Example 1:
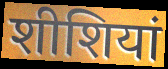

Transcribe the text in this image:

शीशियां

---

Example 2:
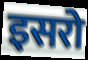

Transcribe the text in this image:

इसरो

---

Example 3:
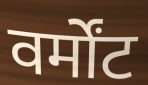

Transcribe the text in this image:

वर्मोंट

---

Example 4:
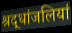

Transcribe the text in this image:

श्रद्धांजलियां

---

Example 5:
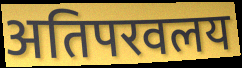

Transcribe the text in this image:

अतिपरवलय